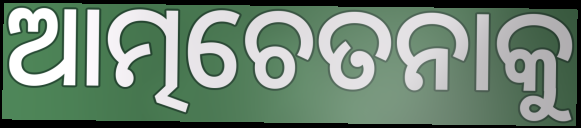
ଆତ୍ମଚେତନାକୁ